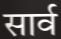
सार्व